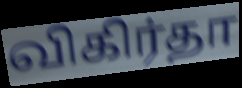
விகிர்தா